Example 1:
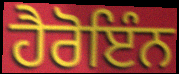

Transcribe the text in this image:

ਹੈਰੋਇੰਨ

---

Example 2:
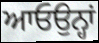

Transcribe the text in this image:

ਆਓਉਨ੍ਹਾਂ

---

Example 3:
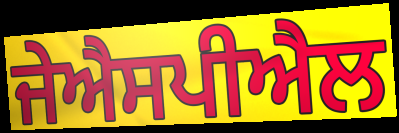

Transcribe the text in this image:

ਜੇਐਸਪੀਐਲ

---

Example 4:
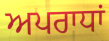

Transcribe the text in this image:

ਅਪਰਾਧਾਂ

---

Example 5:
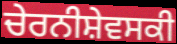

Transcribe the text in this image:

ਚੇਰਨੀਸ਼ੇਵਸਕੀ